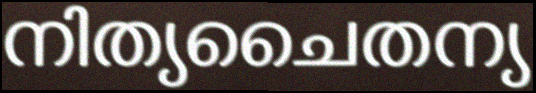
നിത്യചൈതന്യ